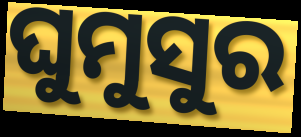
ଘୁମୁସୁର